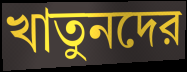
খাতুনদের